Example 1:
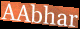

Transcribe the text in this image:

AAbhar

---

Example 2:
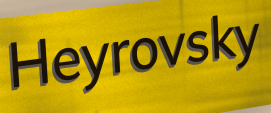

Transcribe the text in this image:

Heyrovsky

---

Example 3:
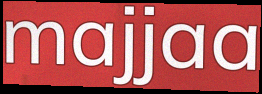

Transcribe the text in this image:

majjaa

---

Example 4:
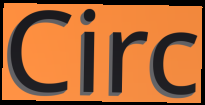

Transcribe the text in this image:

Circ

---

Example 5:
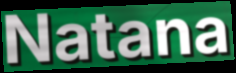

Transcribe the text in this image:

Natana